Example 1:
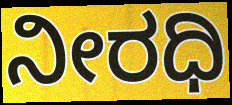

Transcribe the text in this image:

ನೀರಧಿ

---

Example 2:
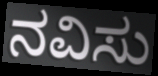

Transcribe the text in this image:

ನವಿಸು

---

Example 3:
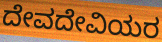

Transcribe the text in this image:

ದೇವದೇವಿಯರ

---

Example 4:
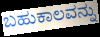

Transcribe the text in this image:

ಬಹುಕಾಲವನ್ನು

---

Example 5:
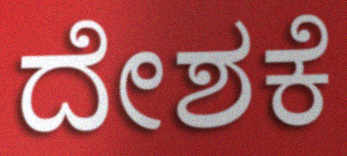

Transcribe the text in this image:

ದೇಶಕೆ